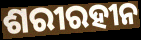
ଶରୀରହୀନ